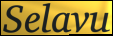
Selavu